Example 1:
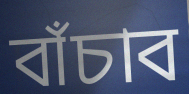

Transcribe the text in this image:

বাঁচাব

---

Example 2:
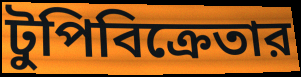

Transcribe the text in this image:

টুপিবিক্রেতার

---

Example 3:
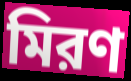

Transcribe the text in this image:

মিরণ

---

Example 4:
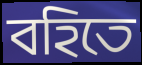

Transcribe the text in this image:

বহিতে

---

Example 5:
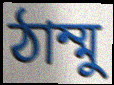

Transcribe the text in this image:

ঠাম্মু